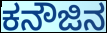
ಕನೌಜಿನ